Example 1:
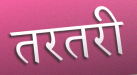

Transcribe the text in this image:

तरतरी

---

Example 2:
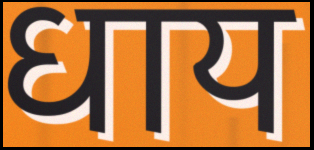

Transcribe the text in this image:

धाय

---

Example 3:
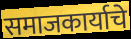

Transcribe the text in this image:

समाजकार्याचे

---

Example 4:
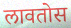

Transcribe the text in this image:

लावतोस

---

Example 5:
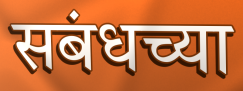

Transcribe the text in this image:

सबंधच्या